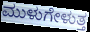
ಮುಳುಗೇಳುತ್ತ